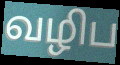
வழிப